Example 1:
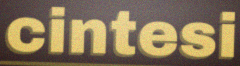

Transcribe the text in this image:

cintesi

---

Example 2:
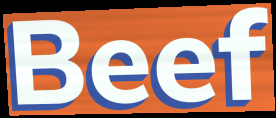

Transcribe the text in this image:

Beef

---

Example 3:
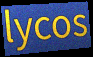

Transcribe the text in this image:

lycos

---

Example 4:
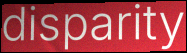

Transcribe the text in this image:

disparity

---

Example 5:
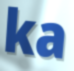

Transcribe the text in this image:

ka